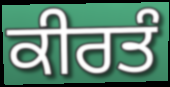
ਕੀਰਤੰ